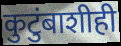
कुटुंबाशीही